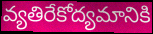
వ్యతిరేకోద్యమానికి